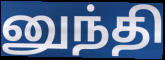
னுந்தி